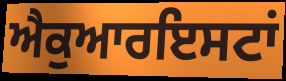
ਐਕੁਆਰਇਸਟਾਂ